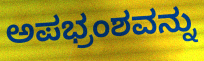
ಅಪಭ್ರಂಶವನ್ನು